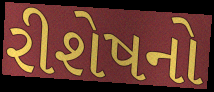
રીશેષનો